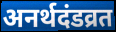
अनर्थदंडव्रत